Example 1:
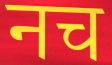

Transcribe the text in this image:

नच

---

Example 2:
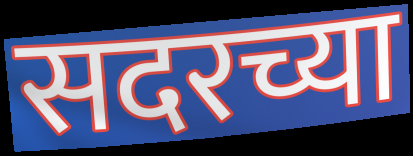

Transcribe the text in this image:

सदरच्या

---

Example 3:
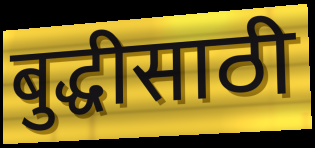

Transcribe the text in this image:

बुद्धीसाठी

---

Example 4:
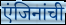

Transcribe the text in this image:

एंजिनांची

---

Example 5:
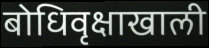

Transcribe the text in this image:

बोधिवृक्षाखाली